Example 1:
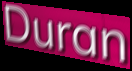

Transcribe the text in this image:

Duran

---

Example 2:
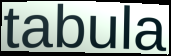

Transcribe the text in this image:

tabula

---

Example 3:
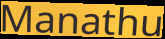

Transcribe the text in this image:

Manathu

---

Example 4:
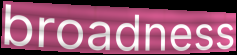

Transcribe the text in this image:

broadness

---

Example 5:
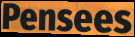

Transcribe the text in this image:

Pensees